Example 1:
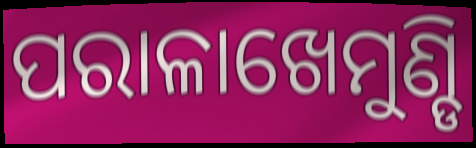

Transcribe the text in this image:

ପରାଳାଖେମୁଣ୍ଡି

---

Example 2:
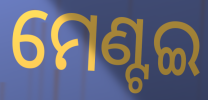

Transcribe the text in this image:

ମେଣ୍ଟଇ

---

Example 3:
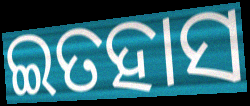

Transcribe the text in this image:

ଇତହାସ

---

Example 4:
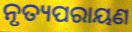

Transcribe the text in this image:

ନୃତ୍ୟପରାୟଣ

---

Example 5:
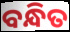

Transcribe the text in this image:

ବନ୍ଧିତ